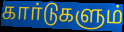
கார்டுகளும்